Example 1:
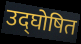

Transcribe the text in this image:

उद्घोषित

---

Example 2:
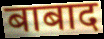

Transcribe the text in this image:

बाबाद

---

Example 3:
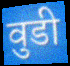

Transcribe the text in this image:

वुडी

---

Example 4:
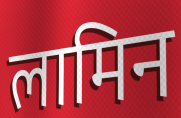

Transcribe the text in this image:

लामिन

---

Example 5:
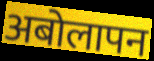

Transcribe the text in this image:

अबोलापन